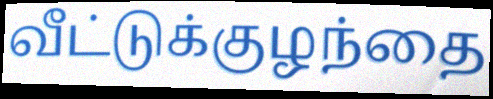
வீட்டுக்குழந்தை